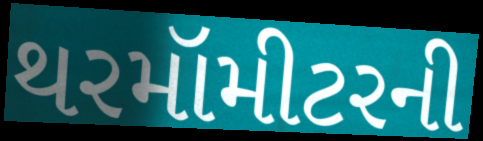
થરમૉમીટરની